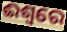
ଈଶ୍ଵରେ